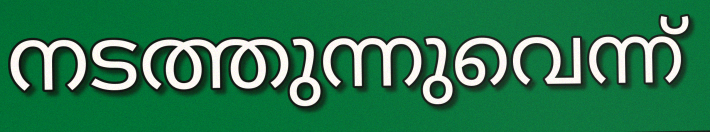
നടത്തുന്നുവെന്ന്